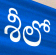
శీలో